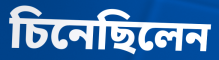
চিনেছিলেন